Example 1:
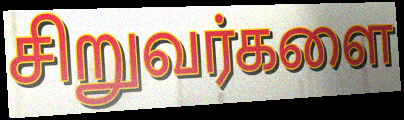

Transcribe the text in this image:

சிறுவர்களை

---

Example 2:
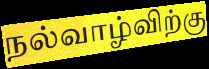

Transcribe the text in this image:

நல்வாழ்விற்கு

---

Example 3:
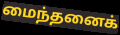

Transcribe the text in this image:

மைந்தனைக்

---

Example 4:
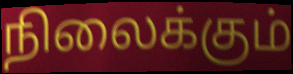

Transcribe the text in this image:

நிலைக்கும்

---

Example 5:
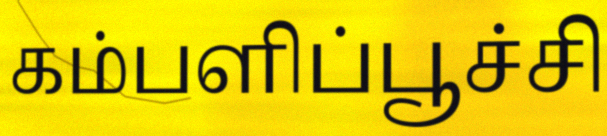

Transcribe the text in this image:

கம்பளிப்பூச்சி